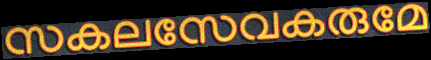
സകലസേവകരുമേ